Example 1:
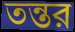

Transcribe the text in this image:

তন্তর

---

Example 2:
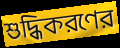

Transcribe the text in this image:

শুদ্ধিকরণের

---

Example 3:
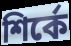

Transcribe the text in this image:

শির্কে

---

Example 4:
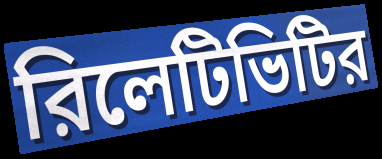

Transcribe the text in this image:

রিলেটিভিটির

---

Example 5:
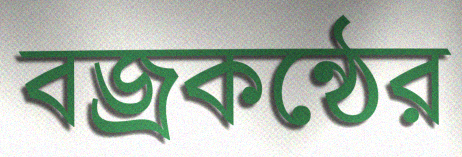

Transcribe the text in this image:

বজ্রকন্ঠের